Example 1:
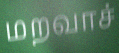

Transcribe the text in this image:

மறவாச்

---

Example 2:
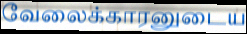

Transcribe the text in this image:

வேலைக்காரனுடைய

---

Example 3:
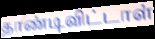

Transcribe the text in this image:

தாண்டிவிட்டாள்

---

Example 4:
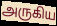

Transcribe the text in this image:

அருகிய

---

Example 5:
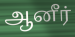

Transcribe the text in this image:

ஆனீர்